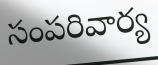
సంపరివార్య